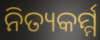
ନିତ୍ୟକର୍ମ୍ମ